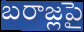
బరాజ్లపై